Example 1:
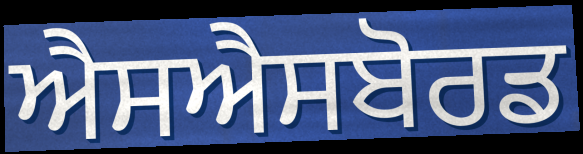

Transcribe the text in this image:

ਐਸਐਸਬੋਰਡ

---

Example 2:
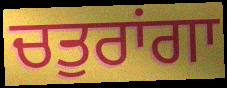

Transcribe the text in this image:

ਚਤੁਰਾਂਗਾ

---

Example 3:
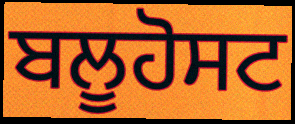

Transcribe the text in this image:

ਬਲੂਹੋਸਟ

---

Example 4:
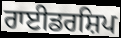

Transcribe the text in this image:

ਰਾਈਡਰਸ਼ਿਪ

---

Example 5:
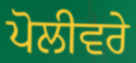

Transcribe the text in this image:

ਪੋਲੀਵਰੇ